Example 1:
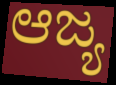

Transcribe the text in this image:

ಆಜ್ಯ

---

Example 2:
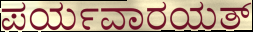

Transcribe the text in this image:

ಪರ್ಯವಾರಯತ್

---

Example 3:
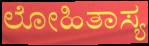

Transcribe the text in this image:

ಲೋಹಿತಾಸ್ಯ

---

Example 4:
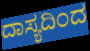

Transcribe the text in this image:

ದಾಸ್ಯದಿಂದ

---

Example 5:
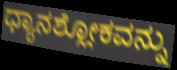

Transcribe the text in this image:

ಧ್ಯಾನಶ್ಲೋಕವನ್ನು